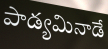
పాడ్యమినాడే